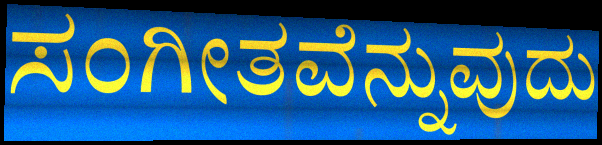
ಸಂಗೀತವೆನ್ನುವುದು